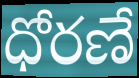
ధోరణే